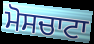
ਮੋਸਚਾਟਾ